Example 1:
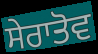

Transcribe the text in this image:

ਸੇਰਾਤੋਵ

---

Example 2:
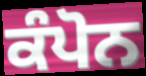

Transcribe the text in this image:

ਕੰਪੋਨ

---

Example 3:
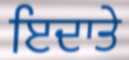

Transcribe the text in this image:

ਇਦਾਤੇ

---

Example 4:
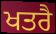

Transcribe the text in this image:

ਖਤਰੈ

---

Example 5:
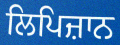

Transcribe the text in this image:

ਲਿਪਿਜ਼ਾਨ